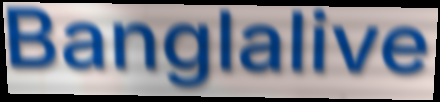
Banglalive